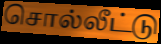
சொல்லீட்டு